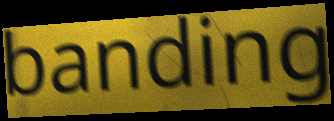
banding